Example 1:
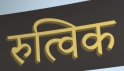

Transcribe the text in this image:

रुत्विक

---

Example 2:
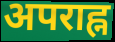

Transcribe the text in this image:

अपराह्न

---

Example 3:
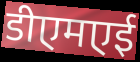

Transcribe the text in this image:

डीएमएई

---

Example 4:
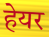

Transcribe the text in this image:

हेयर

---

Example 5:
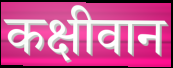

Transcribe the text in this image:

कक्षीवान